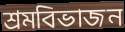
শ্রমবিভাজন